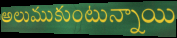
అలుముకుంటున్నాయి